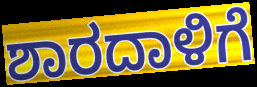
ಶಾರದಾಳಿಗೆ